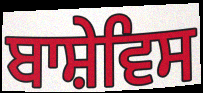
ਬਾਸ਼ੇਵਿਸ